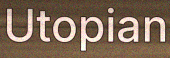
Utopian